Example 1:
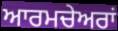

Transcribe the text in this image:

ਆਰਮਚੇਅਰਾਂ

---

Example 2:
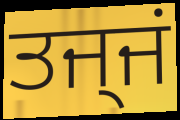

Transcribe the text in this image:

ਤਜ੍ਜਂ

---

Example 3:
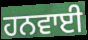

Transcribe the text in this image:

ਹਨਵਾਈ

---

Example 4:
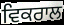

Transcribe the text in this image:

ਵਿਕਰਾਲ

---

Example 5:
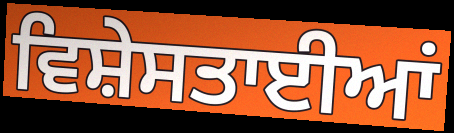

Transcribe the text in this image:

ਵਿਸ਼ੇਸਤਾਈਆਂ